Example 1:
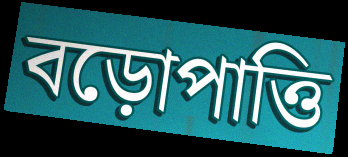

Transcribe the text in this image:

বড়োপাত্তি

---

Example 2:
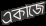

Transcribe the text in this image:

একাজে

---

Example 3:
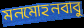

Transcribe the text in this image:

মনমোহনবাবু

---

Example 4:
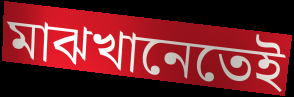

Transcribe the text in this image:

মাঝখানেতেই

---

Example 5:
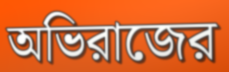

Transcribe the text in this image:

অভিরাজের